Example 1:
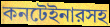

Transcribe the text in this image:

কনটেইনারসহ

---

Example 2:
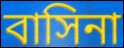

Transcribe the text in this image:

বাসিনা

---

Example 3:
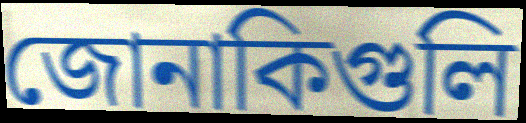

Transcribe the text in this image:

জোনাকিগুলি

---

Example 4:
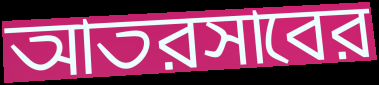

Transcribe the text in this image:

আতরসাবের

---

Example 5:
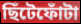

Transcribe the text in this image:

ছিঁটেফোঁটা